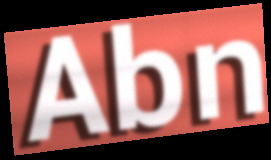
Abn